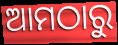
ଆମଠାରୁ